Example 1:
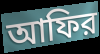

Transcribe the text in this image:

আফির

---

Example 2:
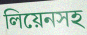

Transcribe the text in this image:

লিয়েনসহ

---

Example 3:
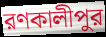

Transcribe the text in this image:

রণকালীপুর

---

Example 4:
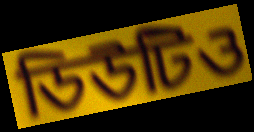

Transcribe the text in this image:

ডিউটিও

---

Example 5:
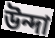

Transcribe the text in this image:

উন্দা